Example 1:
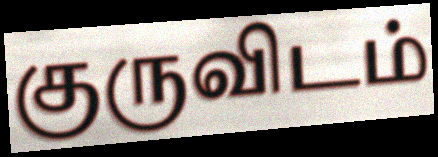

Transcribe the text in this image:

குருவிடம்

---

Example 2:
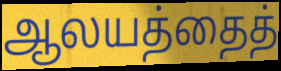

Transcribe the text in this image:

ஆலயத்தைத்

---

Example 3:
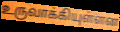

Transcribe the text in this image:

உருவாக்கியுள்ளன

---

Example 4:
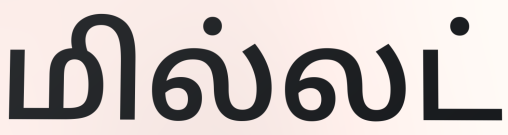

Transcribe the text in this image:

மில்லட்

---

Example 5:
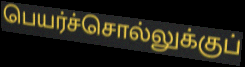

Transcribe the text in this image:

பெயர்ச்சொல்லுக்குப்